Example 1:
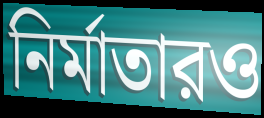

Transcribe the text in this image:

নির্মাতারও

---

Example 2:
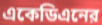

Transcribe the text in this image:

একেডিএনের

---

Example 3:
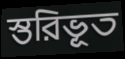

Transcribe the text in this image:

স্তরিভূত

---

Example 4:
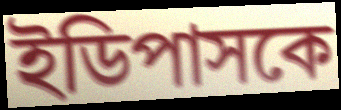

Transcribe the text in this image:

ইডিপাসকে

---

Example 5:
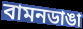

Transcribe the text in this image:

বামনডাঙা